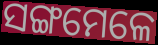
ସଙ୍ଗମେଳେ